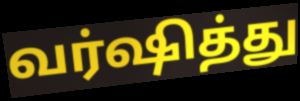
வர்ஷித்து